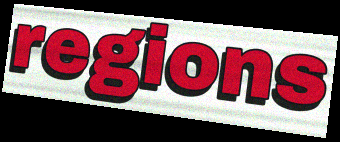
regions